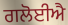
ਗਲੋਈਐ